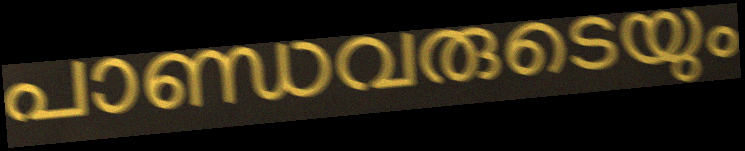
പാണ്ഡവരുടെയും